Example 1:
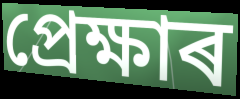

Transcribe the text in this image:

প্ৰেক্ষাৰ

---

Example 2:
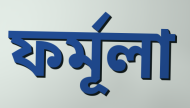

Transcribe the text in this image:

ফৰ্মূলা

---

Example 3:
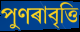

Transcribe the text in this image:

পুণৰাবৃত্তি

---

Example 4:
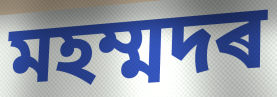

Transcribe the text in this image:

মহম্মদৰ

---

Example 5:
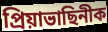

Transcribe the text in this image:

প্ৰিয়াভাছিনীক